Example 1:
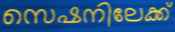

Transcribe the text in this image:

സെഷനിലേക്ക്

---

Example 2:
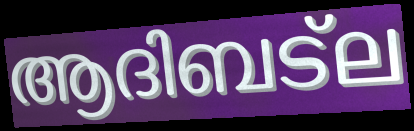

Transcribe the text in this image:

ആദിബട്ല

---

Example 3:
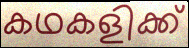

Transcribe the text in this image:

കഥകളിക്ക്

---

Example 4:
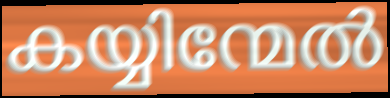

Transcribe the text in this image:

കയ്യിന്മേൽ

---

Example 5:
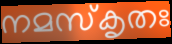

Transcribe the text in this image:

നമസ്കൃതഃ